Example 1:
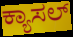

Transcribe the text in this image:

ಕ್ಯಾಸಲ್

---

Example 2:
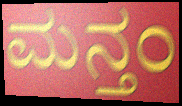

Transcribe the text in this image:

ಮನ್ತಂ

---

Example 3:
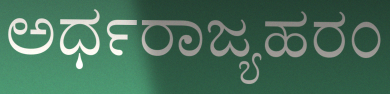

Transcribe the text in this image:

ಅರ್ಧರಾಜ್ಯಹರಂ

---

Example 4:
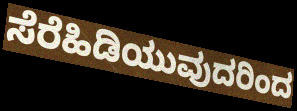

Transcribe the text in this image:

ಸೆರೆಹಿಡಿಯುವುದರಿಂದ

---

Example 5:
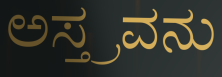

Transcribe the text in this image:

ಅಸ್ತ್ರವನು